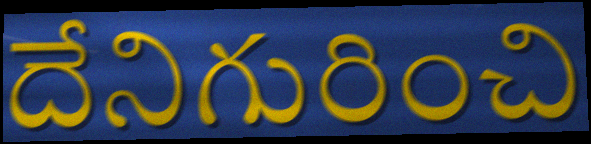
దేనిగురించి